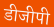
डीजीपी